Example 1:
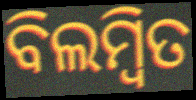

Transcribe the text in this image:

ବିଲମ୍ୱିତ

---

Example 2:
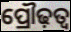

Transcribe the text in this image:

ପ୍ରୌଢ଼ତ୍ୱ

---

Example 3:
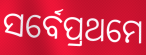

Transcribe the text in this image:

ସର୍ବେପ୍ରଥମେ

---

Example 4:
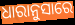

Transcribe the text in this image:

ଧାରାନୁସାରେ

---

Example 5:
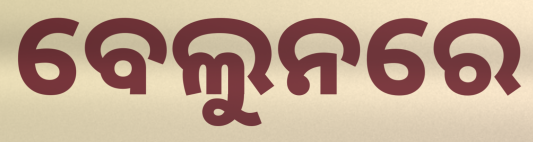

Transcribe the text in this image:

ବେଲୁନରେ